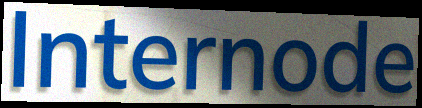
Internode